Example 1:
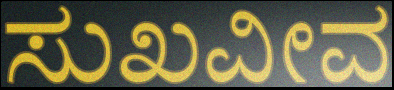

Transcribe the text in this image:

ಸುಖವೀವ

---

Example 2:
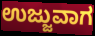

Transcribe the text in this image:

ಉಜ್ಜುವಾಗ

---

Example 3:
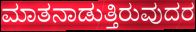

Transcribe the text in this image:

ಮಾತನಾಡುತ್ತಿರುವುದರ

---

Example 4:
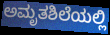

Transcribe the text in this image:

ಅಮೃತಶಿಲೆಯಲ್ಲಿ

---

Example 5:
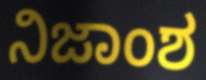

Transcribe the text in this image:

ನಿಜಾಂಶ